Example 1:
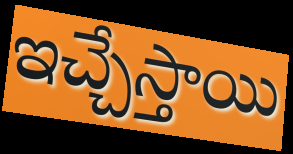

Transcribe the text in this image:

ఇచ్చేస్తాయి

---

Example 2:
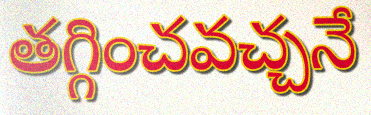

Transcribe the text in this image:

తగ్గించవచ్చనే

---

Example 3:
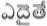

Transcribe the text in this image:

ఎదైతే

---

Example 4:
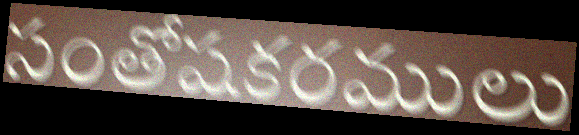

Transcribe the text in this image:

సంతోషకరములు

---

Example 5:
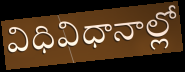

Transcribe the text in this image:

విధివిధానాల్లో